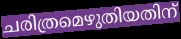
ചരിത്രമെഴുതിയതിന്